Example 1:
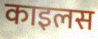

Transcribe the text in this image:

काइलस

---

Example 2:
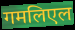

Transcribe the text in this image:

गमलिएल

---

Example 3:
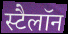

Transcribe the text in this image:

स्टैलॉन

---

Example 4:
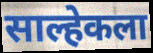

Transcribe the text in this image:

साल्हेकला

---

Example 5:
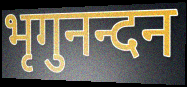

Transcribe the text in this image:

भृगुनन्दन